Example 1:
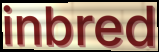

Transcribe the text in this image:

inbred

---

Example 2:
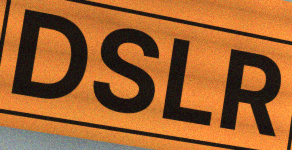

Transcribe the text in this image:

DSLR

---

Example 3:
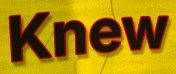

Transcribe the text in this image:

Knew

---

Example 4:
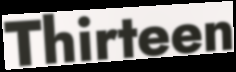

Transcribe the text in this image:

Thirteen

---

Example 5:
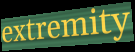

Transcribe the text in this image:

extremity